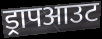
ड्रापआउट